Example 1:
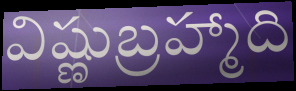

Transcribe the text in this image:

విష్ణుబ్రహ్మాది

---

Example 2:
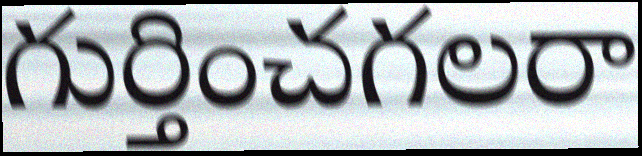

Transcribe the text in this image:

గుర్తించగలరా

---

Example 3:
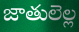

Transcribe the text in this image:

జాతులెల్ల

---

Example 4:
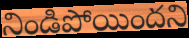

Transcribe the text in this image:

నిండిపోయిందని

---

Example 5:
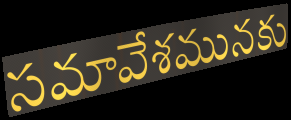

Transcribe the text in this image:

సమావేశమునకు